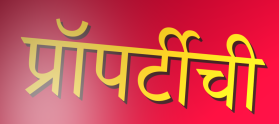
प्रॉपर्टीची